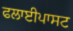
ਫਲਾਈਪਾਸਟ